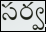
సర్వ